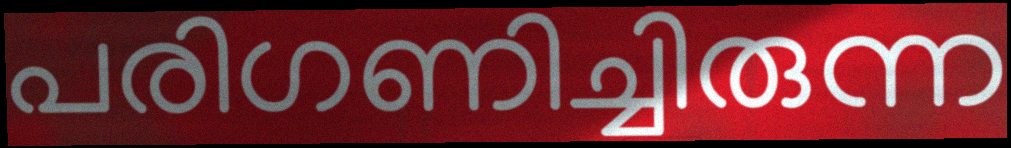
പരിഗണിച്ചിരുന്ന